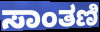
ಸಾಂತಣಿ